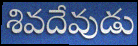
శివదేవుడు